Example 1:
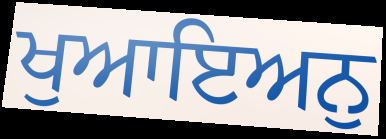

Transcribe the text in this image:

ਖੁਆਇਅਨੁ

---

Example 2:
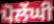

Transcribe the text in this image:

ਪੋਲੇਂਘੀ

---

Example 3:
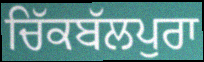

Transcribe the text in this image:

ਚਿੱਕਬੱਲਪੁਰਾ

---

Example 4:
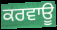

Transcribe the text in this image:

ਕਰਵਾਊ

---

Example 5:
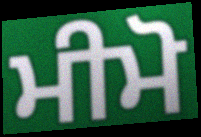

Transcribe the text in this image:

ਮੀਮੋ